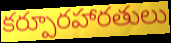
కర్పూరహారతులు